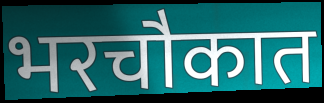
भरचौकात